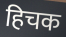
हिचक